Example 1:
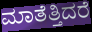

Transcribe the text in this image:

ಮಾತೆತ್ತಿದರೆ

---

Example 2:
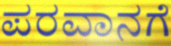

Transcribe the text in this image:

ಪರವಾನಗೆ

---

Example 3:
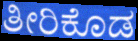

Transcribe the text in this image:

ತೀರಿಕೊಡ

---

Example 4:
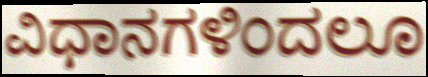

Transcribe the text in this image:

ವಿಧಾನಗಳಿಂದಲೂ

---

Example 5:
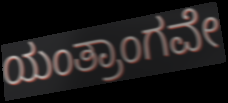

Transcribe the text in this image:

ಯಂತ್ರಾಂಗವೇ